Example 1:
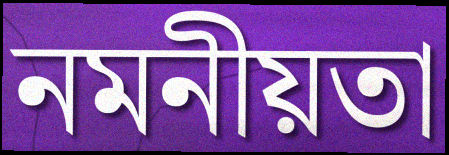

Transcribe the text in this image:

নমনীয়তা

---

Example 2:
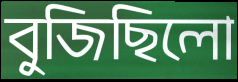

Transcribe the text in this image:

বুজিছিলো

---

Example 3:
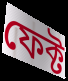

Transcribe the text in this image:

ফেক্ট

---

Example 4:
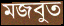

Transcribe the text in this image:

মজবুত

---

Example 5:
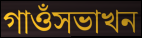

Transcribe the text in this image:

গাওঁসভাখন